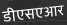
डीएसएआर